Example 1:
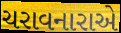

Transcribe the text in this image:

ચરાવનારાએ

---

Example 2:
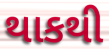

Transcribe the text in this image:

થાકથી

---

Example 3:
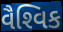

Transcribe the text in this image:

વૈશ્‍વિક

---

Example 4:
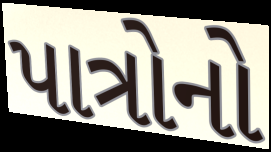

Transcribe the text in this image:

પાત્રોનો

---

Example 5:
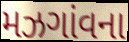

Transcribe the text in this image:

મઝગાંવના